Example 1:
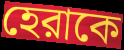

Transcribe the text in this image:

হেরাকে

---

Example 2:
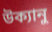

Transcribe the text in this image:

উক্যানু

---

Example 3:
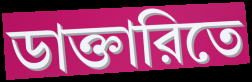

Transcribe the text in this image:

ডাক্তারিতে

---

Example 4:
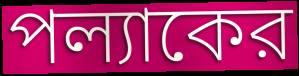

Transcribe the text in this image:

পল্যাকের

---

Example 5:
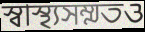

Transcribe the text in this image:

স্বাস্থ্যসম্মতও